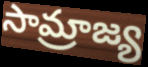
సామ్రాజ్య